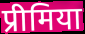
प्रीमिया